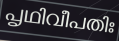
പൃഥിവീപതിഃ